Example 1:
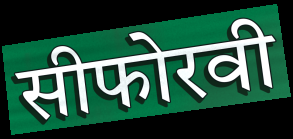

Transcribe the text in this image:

सीफोरवी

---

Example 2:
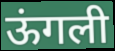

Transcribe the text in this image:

ऊंगली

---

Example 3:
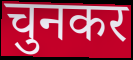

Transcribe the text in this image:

चुनकर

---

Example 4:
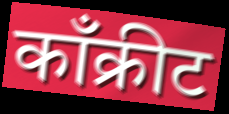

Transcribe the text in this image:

काँक्रीट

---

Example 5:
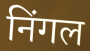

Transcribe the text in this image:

निंगल